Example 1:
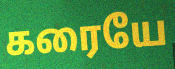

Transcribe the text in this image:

கரையே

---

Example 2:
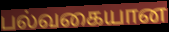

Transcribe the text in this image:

பல்வகையான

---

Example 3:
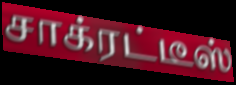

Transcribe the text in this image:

சாக்ரட்டீஸ்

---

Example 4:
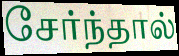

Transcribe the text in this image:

சேர்ந்தால்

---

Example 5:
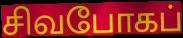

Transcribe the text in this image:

சிவபோகப்